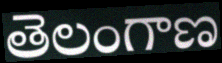
తెలంగాణ